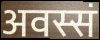
अवस्सं